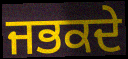
ਜਭਕਦੇ